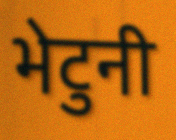
भेटुनी